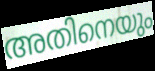
അതിനെയും